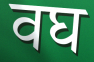
वघ